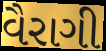
વૈરાગી